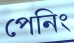
পেনিং